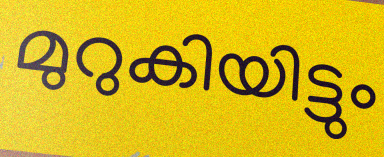
മുറുകിയിട്ടും